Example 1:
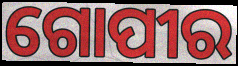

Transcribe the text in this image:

ଗୋପୀର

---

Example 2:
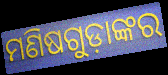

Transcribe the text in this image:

ମଣିଷଗୁଡ଼ାଙ୍କର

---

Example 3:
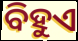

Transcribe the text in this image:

ବିହୁଏ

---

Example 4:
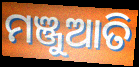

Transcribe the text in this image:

ମଞ୍ଜୁଆତି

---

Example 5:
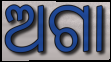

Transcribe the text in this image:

ଅଗା